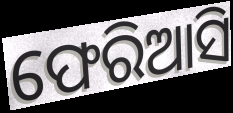
ଫେରିଆସି